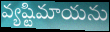
వ్యష్టిమాయను